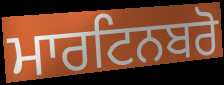
ਮਾਰਟਿਨਬਰੋ